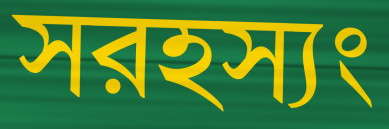
সরহস্যং